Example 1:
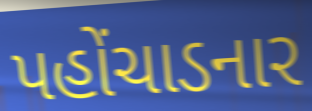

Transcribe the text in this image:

પહોંચાડનાર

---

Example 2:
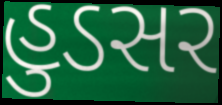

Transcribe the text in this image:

હુડસર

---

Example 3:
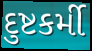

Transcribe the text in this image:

દુષ્ટકર્મી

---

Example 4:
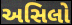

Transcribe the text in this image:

અસિલો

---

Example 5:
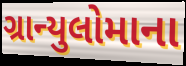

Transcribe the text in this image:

ગ્રાન્યુલોમાના